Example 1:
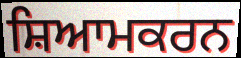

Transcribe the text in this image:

ਸ਼ਿਆਮਕਰਨ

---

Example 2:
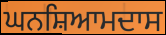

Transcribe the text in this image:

ਘਨਸ਼ਿਆਮਦਾਸ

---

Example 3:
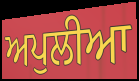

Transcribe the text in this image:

ਅਪੁਲੀਆ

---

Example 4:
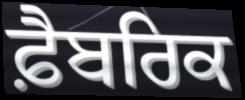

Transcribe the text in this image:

ਫ਼ੈਬਰਿਕ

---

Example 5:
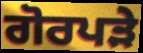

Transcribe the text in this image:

ਗੋਰਪੜੇ